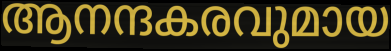
ആനന്ദകരവുമായ